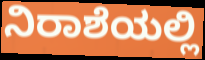
ನಿರಾಶೆಯಲ್ಲಿ